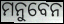
ମନୁବେନ